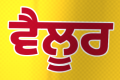
ਵੈਲੂਰ